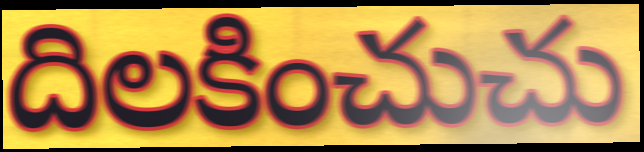
దిలకించుచు